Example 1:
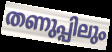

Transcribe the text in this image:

തണുപ്പിലും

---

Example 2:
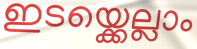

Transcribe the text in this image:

ഇടയ്ക്കെല്ലാം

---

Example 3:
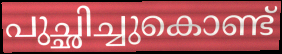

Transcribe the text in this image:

പുച്ഛിച്ചുകൊണ്ട്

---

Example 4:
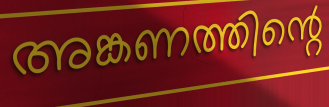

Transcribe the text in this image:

അങ്കണത്തിന്റെ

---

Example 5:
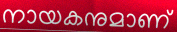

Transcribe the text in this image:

നായകനുമാണ്